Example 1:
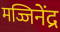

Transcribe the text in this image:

मज्जिनेंद्र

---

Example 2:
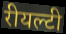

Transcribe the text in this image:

रीयल्टी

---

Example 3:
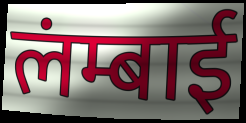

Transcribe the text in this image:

लंम्बाई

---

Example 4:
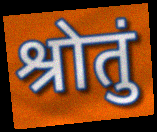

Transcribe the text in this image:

श्रोतुं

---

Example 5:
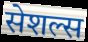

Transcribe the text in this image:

सेशल्स